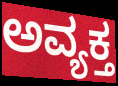
ಅವ್ಯಕ್ತ